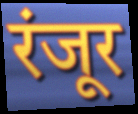
रंजूर